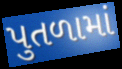
પુતળામાં